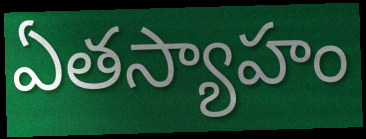
ఏతస్యాహం